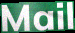
Mail